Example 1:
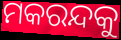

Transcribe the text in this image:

ମକରନ୍ଦକୁ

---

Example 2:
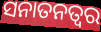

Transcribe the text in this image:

ସନାତନତ୍ୱର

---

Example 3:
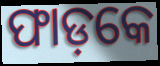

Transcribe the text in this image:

ଫାଡ଼କେ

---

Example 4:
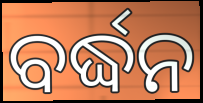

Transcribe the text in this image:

ବର୍ଦ୍ଧନ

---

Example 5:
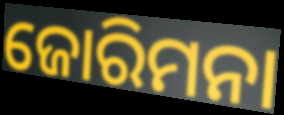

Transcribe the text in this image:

ଜୋରିମନା